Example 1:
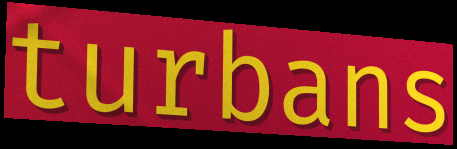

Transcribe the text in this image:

turbans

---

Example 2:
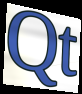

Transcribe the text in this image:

Qt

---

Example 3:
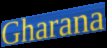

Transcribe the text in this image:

Gharana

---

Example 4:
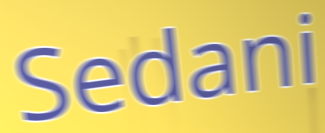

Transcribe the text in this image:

Sedani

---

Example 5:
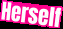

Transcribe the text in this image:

Herself